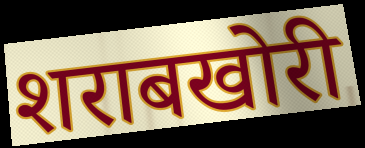
शराबखोरी